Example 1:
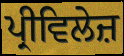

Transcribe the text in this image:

ਪ੍ਰੀਵਿਲੇਜ਼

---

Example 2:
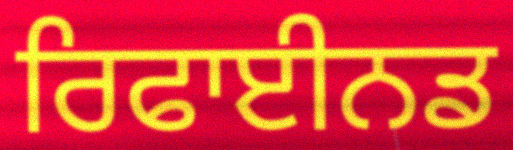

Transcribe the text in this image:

ਰਿਫਾਈਨਡ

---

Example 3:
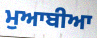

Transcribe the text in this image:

ਮੁਆਬੀਆ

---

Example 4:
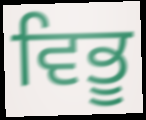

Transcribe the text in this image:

ਵਿਭੂ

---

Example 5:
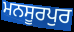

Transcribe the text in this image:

ਮਨਸੂਰਪੁਰ